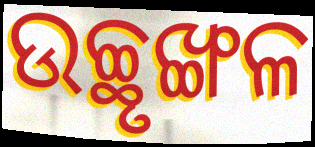
ଉଚ୍ଛୃଙ୍ଖଳ